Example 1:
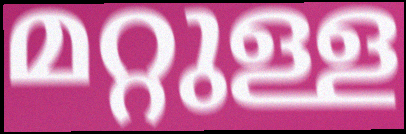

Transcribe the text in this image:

മറ്റുള്ള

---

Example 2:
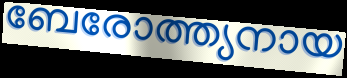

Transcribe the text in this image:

ബേരോത്ത്യനായ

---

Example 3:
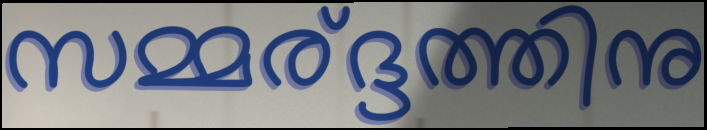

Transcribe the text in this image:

സമ്മര്ദ്ദത്തിനു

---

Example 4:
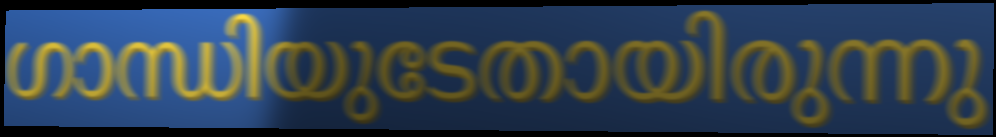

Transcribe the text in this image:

ഗാന്ധിയുടേതായിരുന്നു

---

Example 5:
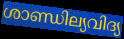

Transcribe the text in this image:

ശാണ്ഡില്യവിദ്യ